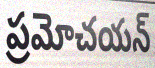
ప్రమోచయన్